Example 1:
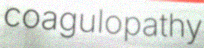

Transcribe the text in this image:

coagulopathy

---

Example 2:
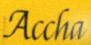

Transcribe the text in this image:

Accha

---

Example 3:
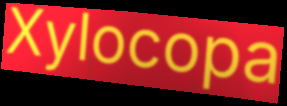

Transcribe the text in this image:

Xylocopa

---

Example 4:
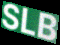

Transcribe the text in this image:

SLB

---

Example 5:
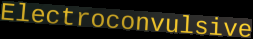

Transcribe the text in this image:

Electroconvulsive